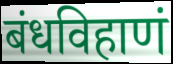
बंधविहाणं